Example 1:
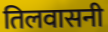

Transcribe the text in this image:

तिलवासनी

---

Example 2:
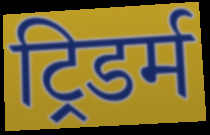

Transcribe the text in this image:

ट्रिडर्म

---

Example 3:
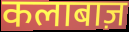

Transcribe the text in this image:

कलाबाज़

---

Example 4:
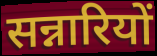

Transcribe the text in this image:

सन्नारियों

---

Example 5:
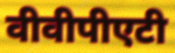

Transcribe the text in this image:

वीवीपीएटी